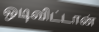
ஒடிவிட்டான்